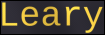
Leary